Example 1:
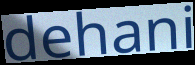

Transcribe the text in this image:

dehani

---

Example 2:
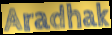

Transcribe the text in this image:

Aradhak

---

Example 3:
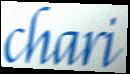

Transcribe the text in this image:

chari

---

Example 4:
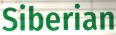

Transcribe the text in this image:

Siberian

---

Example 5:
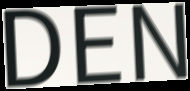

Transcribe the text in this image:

DEN